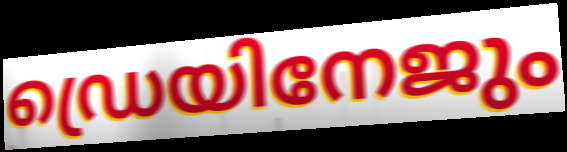
ഡ്രെയിനേജും